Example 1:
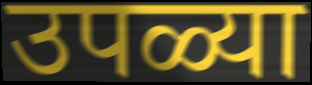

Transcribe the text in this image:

उपळ्या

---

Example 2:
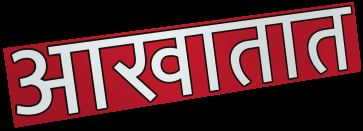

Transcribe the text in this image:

आखातात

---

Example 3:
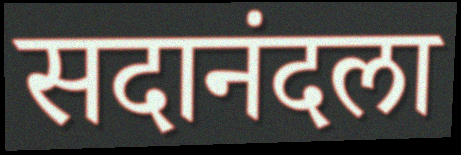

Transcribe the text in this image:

सदानंदला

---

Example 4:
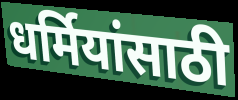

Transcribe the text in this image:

धर्मियांसाठी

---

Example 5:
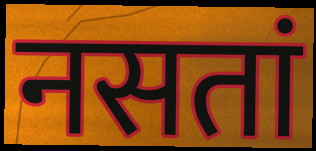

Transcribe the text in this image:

नसतां